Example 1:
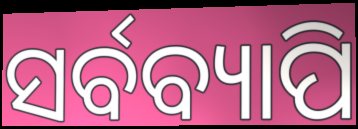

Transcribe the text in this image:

ସର୍ବବ୍ୟାପି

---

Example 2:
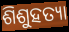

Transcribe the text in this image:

ଶିଶୁହତ୍ୟା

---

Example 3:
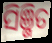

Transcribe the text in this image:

ସିଞ୍ଜିତ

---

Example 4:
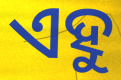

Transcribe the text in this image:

ଏହୁ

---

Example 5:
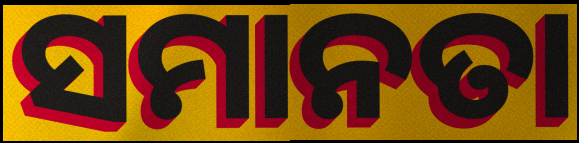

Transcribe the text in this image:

ସମାନତା